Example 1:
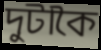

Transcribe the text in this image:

দুটাকৈ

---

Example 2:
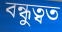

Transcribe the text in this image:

বন্ধুত্বত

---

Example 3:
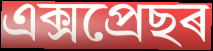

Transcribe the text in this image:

এক্সপ্ৰেছৰ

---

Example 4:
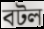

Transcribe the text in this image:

বটল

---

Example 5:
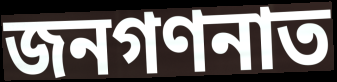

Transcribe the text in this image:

জনগণনাত